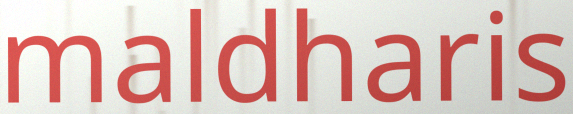
maldharis